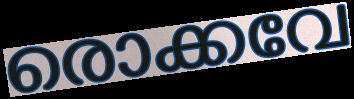
രൊക്കവേ